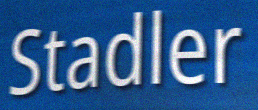
Stadler